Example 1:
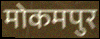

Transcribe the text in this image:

मोकमपुर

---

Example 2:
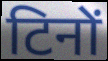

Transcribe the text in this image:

टिनों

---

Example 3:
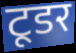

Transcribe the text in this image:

टूडर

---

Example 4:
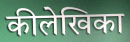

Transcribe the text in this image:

कीलेखिका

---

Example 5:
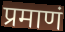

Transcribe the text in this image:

प्रमाणं